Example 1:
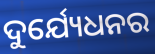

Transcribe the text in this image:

ଦୁର୍ଯ୍ୟେଧନର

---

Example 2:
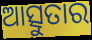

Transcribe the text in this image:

ଆତ୍ସୁତାର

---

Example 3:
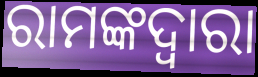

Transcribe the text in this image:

ରାମଙ୍କଦ୍ଵାରା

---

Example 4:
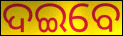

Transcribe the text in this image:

ଦଇବେ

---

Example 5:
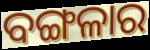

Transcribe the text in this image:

ବଙ୍ଗଳାର